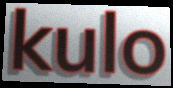
kulo